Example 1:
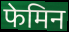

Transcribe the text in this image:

फेमिन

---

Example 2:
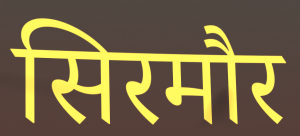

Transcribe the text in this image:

सिरमौर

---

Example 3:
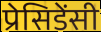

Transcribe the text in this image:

प्रेसिडेंसी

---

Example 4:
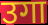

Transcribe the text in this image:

उगा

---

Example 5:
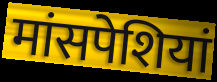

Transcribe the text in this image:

मांसपेशियां